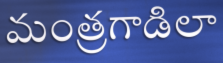
మంత్రగాడిలా